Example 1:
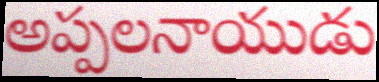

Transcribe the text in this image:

అప్పలనాయుడు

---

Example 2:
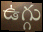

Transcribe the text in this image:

ఉగ్గు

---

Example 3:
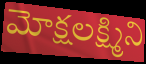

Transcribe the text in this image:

మోక్షలక్ష్మిని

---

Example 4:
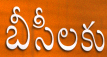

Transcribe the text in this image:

బీసీలకు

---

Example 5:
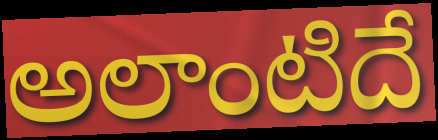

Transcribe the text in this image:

అలాంటిదే